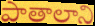
పాతాలాని